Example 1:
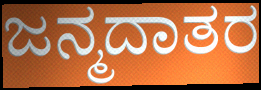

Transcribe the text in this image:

ಜನ್ಮದಾತರ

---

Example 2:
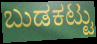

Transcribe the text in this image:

ಬುಡಕಟ್ಟು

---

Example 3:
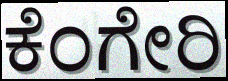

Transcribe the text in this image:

ಕೆಂಗೇರಿ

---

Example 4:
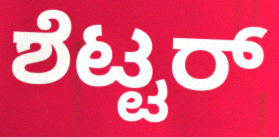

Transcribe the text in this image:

ಶೆಟ್ಟರ್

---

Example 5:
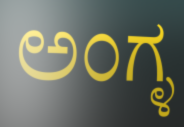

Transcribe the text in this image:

ಅಂಗ್ಳ